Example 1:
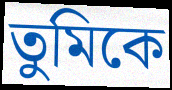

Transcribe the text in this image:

তুমিকে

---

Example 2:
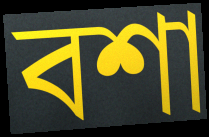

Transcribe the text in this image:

বশা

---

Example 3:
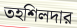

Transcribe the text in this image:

তহশিলদার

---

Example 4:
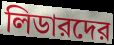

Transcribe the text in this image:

লিডারদের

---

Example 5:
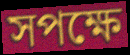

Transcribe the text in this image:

সপক্ষে